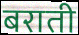
बराती